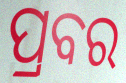
ପ୍ରବର